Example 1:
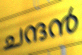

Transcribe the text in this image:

ചന്ദൻ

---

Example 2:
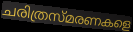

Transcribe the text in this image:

ചരിത്രസ്മരണകളെ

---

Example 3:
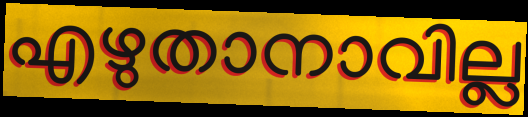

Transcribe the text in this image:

എഴുതാനാവില്ല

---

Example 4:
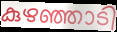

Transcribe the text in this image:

കുഴഞ്ഞാടി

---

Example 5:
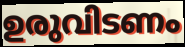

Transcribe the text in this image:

ഉരുവിടണം